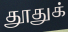
தூதுக்